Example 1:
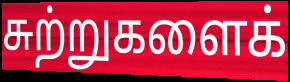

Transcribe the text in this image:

சுற்றுகளைக்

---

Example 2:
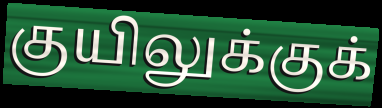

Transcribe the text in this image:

குயிலுக்குக்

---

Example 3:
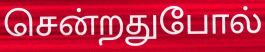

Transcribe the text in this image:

சென்றதுபோல்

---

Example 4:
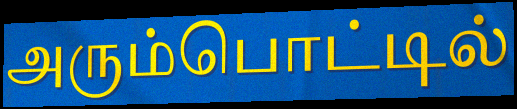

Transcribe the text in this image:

அரும்பொட்டில்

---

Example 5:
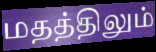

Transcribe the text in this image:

மதத்திலும்